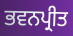
ਭਵਨਪ੍ਰੀਤ